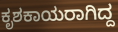
ಕೃಶಕಾಯರಾಗಿದ್ದ